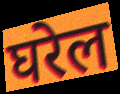
घरेल